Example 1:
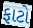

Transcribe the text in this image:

ફાટો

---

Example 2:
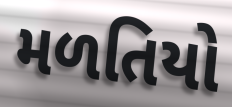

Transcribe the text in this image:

મળતિયો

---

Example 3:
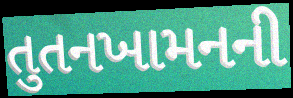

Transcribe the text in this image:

તુતનખામનની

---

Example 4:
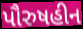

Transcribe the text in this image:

પૌરુષહીન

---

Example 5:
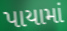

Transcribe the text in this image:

પાયામાં